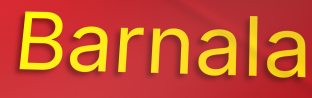
Barnala